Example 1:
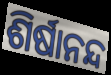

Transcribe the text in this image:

ଶିର୍ଷାନନ୍ଦ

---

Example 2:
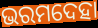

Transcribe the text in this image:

ଭରମଦେହା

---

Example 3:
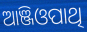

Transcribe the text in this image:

ଆଞ୍ଜିଓପାଥି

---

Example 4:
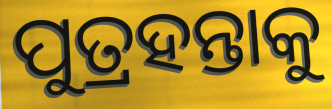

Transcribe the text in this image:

ପୁତ୍ରହନ୍ତାକୁ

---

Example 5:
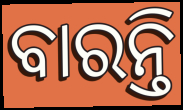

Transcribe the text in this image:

ବାରନ୍ତି